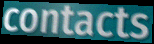
contacts